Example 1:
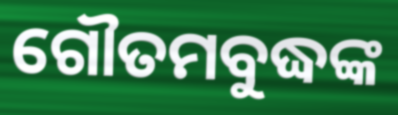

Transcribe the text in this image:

ଗୌତମବୁଦ୍ଧଙ୍କ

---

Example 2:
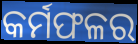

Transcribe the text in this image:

କର୍ମଫଳର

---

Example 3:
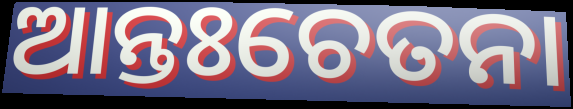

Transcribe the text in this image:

ଆନ୍ତଃଚେତନା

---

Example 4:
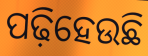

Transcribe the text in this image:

ପଢ଼ିହେଉଛି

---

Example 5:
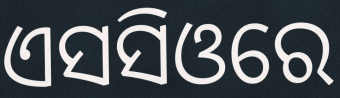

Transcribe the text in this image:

ଏସସିଓରେ